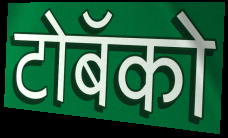
टोबॅको